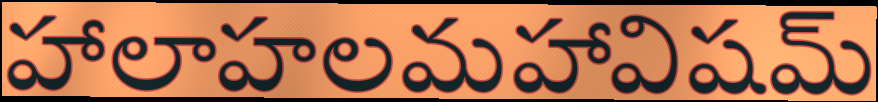
హాలాహలమహావిషమ్